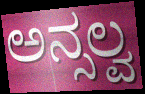
ಅನ್ಸಲ್ವ